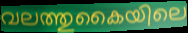
വലത്തുകൈയിലെ